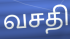
வசதி